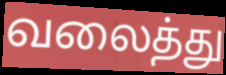
வலைத்து